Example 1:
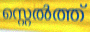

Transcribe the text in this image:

സ്റ്റെൽത്ത്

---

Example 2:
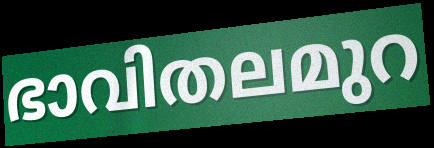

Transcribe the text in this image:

ഭാവിതലമുറ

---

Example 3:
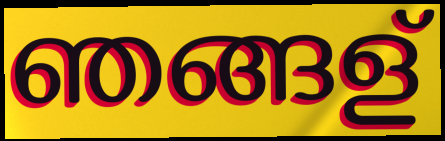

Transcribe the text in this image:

ഞങ്ങള്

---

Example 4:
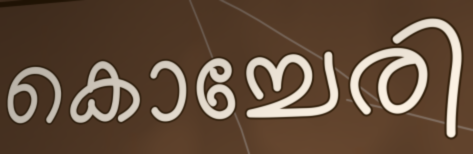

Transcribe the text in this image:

കൊച്ചേരി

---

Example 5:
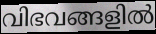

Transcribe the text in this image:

വിഭവങ്ങളിൽ